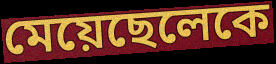
মেয়েছেলেকে